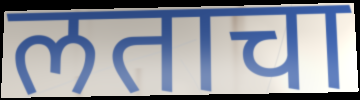
लताचा